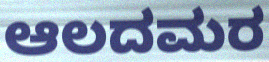
ಆಲದಮರ